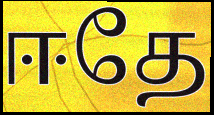
ஈதே